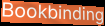
Bookbinding